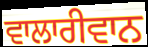
ਵਾਲਾਰੀਵਾਨ